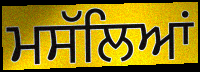
ਮਸੱਲਿਆਂ